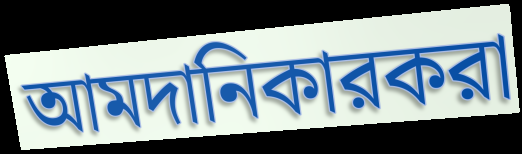
আমদানিকারকরা